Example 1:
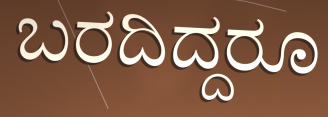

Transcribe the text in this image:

ಬರದಿದ್ದರೂ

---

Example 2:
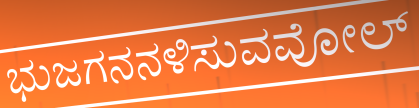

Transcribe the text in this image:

ಭುಜಗನನಳಿಸುವವೋಲ್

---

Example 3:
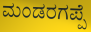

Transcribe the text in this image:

ಮಂಡರಗಪ್ಪೆ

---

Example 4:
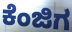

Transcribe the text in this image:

ಕೆಂಜಿಗ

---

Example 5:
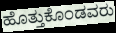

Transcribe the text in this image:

ಹೊತ್ತುಕೊಂಡವರು